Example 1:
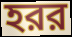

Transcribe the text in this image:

হরর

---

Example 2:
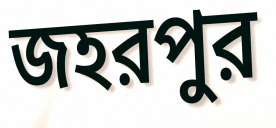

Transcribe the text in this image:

জহরপুর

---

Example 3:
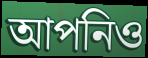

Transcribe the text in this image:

আপনিও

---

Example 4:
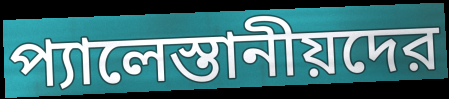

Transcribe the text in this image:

প্যালেস্তানীয়দের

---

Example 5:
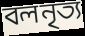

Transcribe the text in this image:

বলনৃত্য